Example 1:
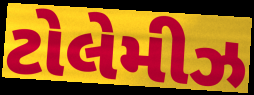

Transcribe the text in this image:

ટોલેમીઝ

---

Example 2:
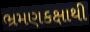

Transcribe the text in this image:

ભ્રમણકક્ષાથી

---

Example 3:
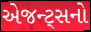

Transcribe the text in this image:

એજન્ટ્સનો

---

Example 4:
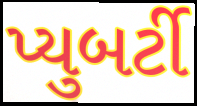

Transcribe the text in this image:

પ્યુબર્ટી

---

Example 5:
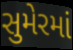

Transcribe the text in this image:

સુમેરમાં